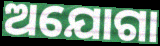
ଅଯୋଗା